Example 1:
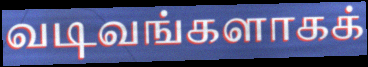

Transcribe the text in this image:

வடிவங்களாகக்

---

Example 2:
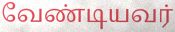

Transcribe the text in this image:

வேண்டியவர்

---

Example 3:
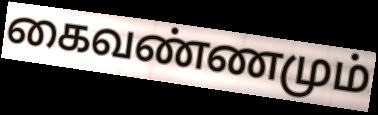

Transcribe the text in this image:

கைவண்ணமும்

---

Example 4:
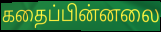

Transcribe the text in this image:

கதைப்பின்னலை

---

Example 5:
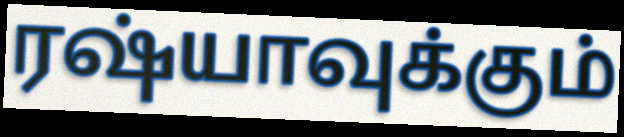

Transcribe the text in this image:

ரஷ்யாவுக்கும்